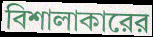
বিশালাকারের